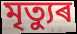
মৃত্যুৰ